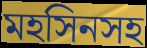
মহসিনসহ